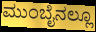
ಮುಂಬೈನಲ್ಲೂ